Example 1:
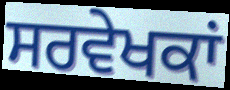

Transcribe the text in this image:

ਸਰਵੇਖਕਾਂ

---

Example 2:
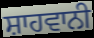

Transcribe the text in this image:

ਸ਼ਾਹਵਾਨੀ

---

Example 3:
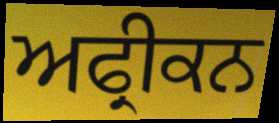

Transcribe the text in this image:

ਅਫ੍ਰੀਕਨ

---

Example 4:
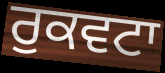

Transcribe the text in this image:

ਰੁਕਵਟਾ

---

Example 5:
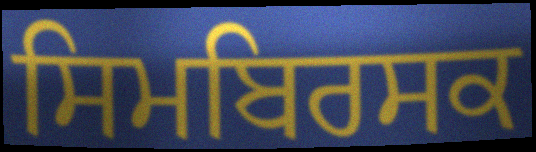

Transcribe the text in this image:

ਸਿਮਬਿਰਸਕ